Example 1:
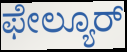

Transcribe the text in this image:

ಫೇಲ್ಯೂರ್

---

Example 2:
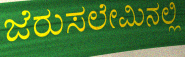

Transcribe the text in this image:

ಜೆರುಸಲೇಮಿನಲ್ಲಿ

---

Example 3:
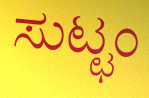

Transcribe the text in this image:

ಸುಟ್ಟಂ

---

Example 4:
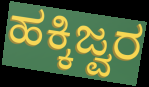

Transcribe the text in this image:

ಹಕ್ಕಿಜ್ವರ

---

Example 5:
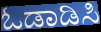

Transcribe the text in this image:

ಓಡಾಡಿಸಿ